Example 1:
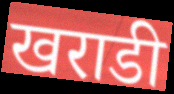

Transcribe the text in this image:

खराडी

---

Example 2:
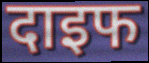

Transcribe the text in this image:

दाइफ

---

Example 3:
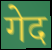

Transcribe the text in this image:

गेद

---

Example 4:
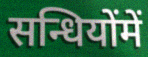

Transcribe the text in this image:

सन्धियोंमें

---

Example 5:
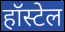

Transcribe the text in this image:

हॉस्टेल